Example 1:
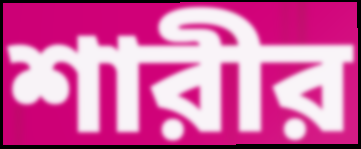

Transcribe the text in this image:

শারীর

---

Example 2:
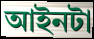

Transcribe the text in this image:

আইনটা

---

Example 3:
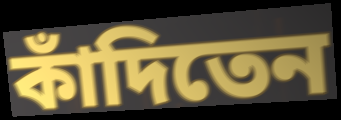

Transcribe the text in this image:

কাঁদিতেন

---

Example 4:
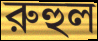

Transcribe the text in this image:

রুহুল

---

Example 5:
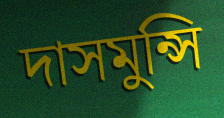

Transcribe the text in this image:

দাসমুন্সি